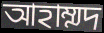
আহাম্মদ